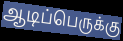
ஆடிப்பெருக்கு